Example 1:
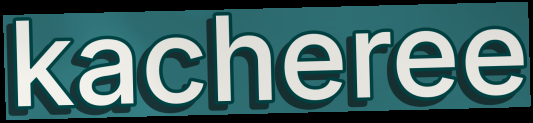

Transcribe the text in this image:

kacheree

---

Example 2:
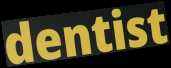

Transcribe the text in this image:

dentist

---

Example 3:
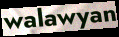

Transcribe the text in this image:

walawyan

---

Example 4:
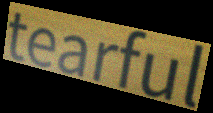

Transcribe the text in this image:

tearful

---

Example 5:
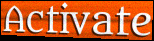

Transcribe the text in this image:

Activate